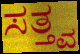
ಸತ್ತ್ವ